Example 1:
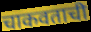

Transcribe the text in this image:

चाकवताची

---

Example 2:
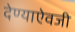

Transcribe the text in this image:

देण्याऐवजी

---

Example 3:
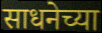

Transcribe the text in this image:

साधनेच्या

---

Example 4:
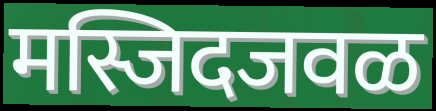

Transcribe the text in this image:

मस्जिदजवळ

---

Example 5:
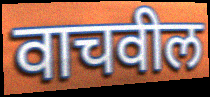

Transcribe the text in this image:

वाचवील